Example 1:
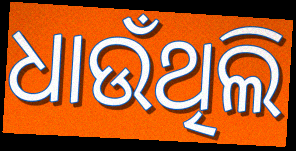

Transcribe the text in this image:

ଧାଉଁଥିଲି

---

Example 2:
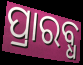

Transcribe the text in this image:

ପ୍ରାରବ୍ଧ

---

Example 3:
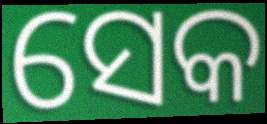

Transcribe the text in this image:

ସେକ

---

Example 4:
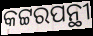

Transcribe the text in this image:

କଟ୍ଟରପନ୍ଥୀ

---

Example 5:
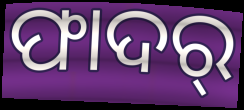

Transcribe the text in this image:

ଫାଦର୍